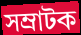
সম্ৰাটক